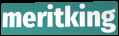
meritking